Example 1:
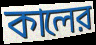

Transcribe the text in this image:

কালের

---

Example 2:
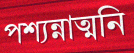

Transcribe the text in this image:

পশ্যন্নাত্মনি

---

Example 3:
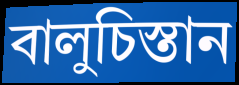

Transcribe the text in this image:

বালুচিস্তান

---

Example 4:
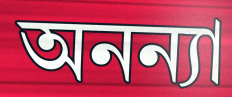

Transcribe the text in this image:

অনন্যা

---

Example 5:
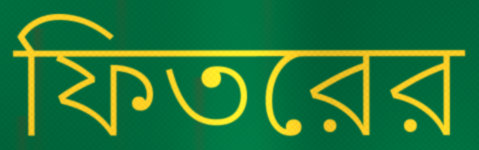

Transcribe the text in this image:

ফিতরের